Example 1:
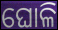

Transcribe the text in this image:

ଘୋଳି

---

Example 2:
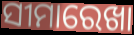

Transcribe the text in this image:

ସୀମାରେଖା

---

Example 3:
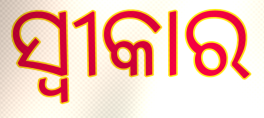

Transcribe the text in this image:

ସ୍ୱୀକାର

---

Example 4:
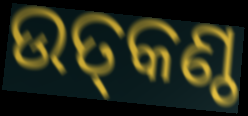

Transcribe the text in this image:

ଉତ୍‌କଣ୍ଠ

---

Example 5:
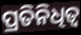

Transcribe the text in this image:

ପ୍ରତିନିଧିତ୍ବ